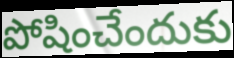
పోషించేందుకు